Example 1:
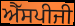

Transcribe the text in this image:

ਐੱਸਪੀਜੀ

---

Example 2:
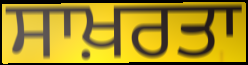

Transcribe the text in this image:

ਸਾਖ਼ਰਤਾ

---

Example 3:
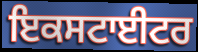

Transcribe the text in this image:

ਇਕਸਟਾਈਟਰ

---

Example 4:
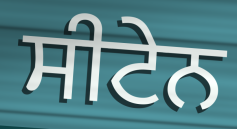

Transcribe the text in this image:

ਸੀਟੇਨ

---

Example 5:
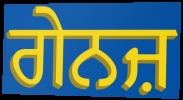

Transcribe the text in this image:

ਗੇਨਜ਼